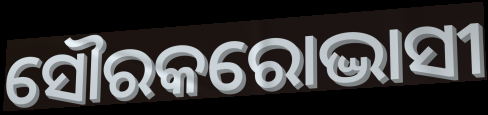
ସୌରକରୋଦ୍ଭାସୀ